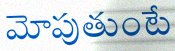
మోపుతుంటే